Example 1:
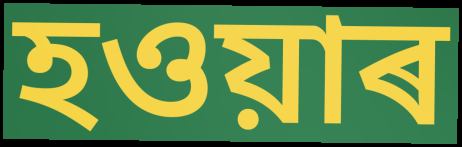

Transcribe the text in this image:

হওয়াৰ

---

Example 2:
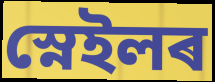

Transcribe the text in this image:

স্নেইলৰ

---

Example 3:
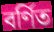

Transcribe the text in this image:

বৰ্ণিত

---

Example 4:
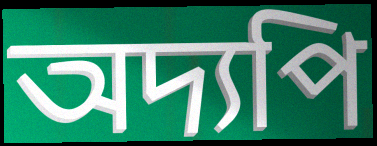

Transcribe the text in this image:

অদ্যপি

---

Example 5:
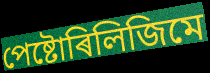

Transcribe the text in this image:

পেষ্টোৰিলিজিমে